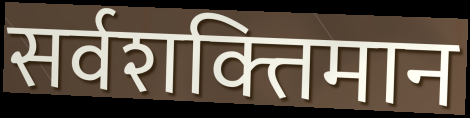
सर्वशक्तिमान